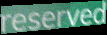
reserved